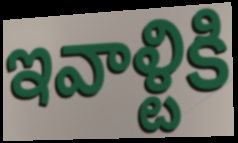
ఇవాళ్టికి